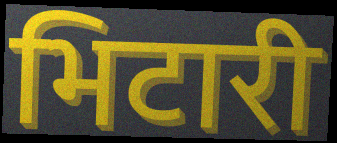
भिटारी